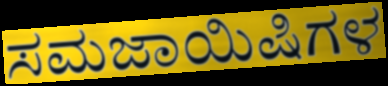
ಸಮಜಾಯಿಷಿಗಳ